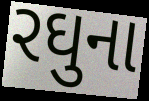
રઘુના